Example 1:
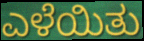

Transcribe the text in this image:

ಎಳೆಯಿತು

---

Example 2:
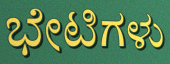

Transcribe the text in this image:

ಭೇಟಿಗಳು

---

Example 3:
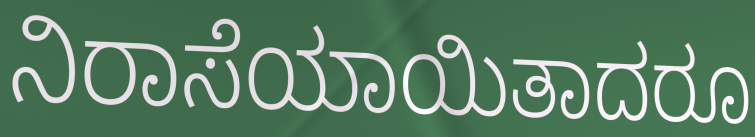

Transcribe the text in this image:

ನಿರಾಸೆಯಾಯಿತಾದರೂ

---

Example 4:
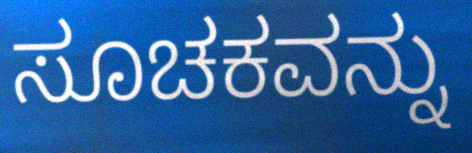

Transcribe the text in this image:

ಸೂಚಕವನ್ನು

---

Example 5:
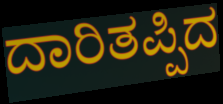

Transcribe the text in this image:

ದಾರಿತಪ್ಪಿದ